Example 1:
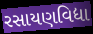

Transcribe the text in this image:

રસાયણવિદ્યા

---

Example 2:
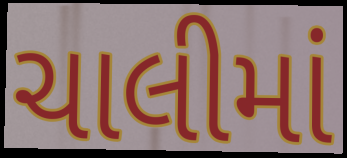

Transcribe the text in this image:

ચાલીમાં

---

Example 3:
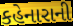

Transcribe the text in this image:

કહેનારાની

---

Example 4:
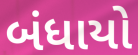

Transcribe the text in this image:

બંધાયો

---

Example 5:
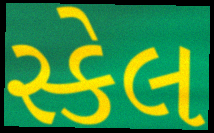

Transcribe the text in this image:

સ્કેલ